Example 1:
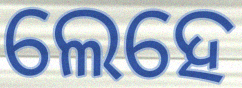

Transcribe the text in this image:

ଲେହେ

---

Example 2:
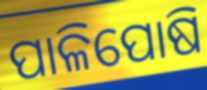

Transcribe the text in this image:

ପାଳିପୋଷି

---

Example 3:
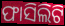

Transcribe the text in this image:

ଫାସିଲିଟି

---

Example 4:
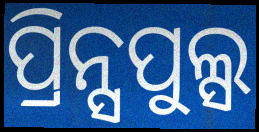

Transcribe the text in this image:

ପ୍ରିନ୍ସପୁଲ୍ସ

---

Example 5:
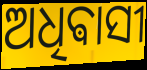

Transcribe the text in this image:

ଅଧିଵାସୀ